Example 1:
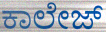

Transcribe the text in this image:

ಕಾಲೇಜ್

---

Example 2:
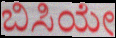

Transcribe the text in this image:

ಬಿಸಿಯೇ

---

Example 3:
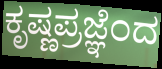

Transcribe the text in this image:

ಕೃಷ್ಣಪ್ರಜ್ಞೆಂದ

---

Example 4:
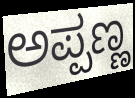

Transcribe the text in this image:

ಅಪ್ಪಣ್ಣ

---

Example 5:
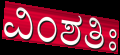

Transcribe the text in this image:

ವಿಂಶತಿಃ